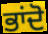
ਭਾਂਦੋ